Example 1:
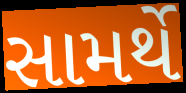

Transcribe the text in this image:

સામર્થે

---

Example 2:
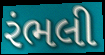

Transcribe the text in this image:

રંભલી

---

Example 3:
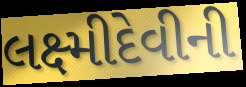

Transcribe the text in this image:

લક્ષ્મીદેવીની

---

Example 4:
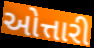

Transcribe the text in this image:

ઓત્તારી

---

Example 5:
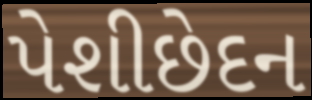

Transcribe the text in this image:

પેશીછેદન